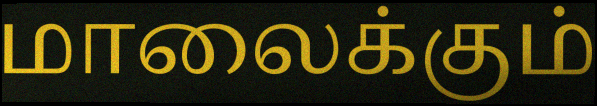
மாலைக்கும்